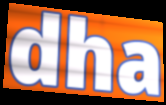
dha